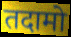
तदामो